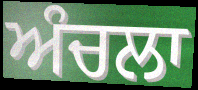
ਅੰਚਲਾ